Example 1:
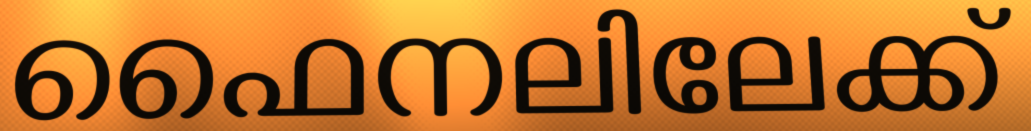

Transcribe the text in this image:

ഫൈനലിലേക്ക്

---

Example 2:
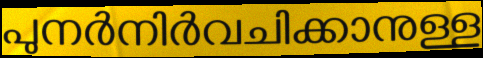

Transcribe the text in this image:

പുനർനിർവചിക്കാനുള്ള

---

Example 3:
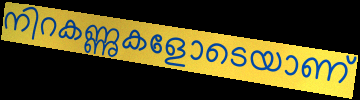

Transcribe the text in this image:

നിറകണ്ണുകളോടെയാണ്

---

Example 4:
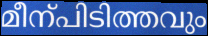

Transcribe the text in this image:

മീന്പിടിത്തവും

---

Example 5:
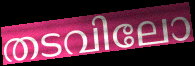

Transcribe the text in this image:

തടവിലോ